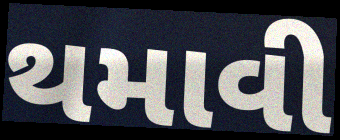
થમાવી